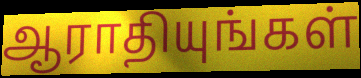
ஆராதியுங்கள்